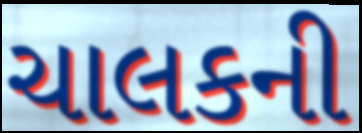
ચાલકની